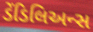
ડેંડિલિઅન્સ